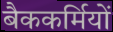
बैककर्मियों